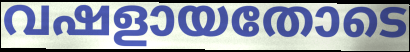
വഷളായതോടെ